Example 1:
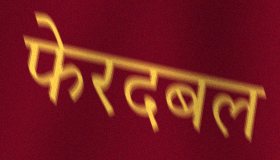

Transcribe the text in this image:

फेरदबल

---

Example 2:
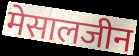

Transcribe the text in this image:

मेसालजीन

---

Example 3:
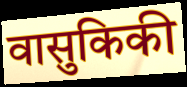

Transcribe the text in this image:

वासुकिकी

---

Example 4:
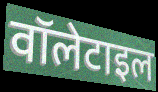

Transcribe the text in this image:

वॉलेटाइल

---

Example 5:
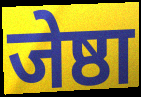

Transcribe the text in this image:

जेष्ठा